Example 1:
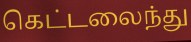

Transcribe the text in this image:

கெட்டலைந்து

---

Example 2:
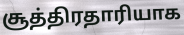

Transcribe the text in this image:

சூத்திரதாரியாக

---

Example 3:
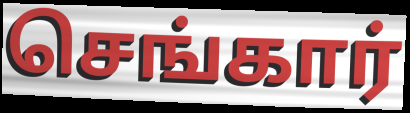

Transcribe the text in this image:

செங்கார்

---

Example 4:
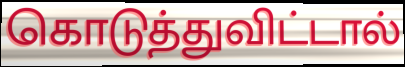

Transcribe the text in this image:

கொடுத்துவிட்டால்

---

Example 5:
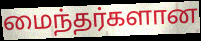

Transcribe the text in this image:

மைந்தர்களான